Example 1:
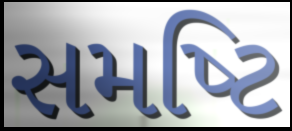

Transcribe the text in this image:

સમષ્‍ટિ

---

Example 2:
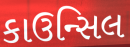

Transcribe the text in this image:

કાઉન્‍સિલ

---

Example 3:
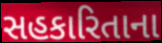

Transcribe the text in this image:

સહકારિતાના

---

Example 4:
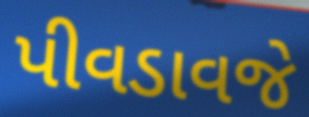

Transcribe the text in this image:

પીવડાવજે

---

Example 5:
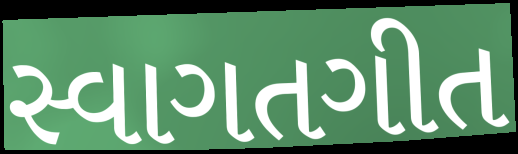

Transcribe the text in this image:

સ્વાગતગીત